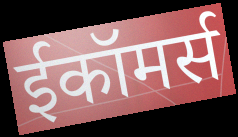
ईकॉमर्स